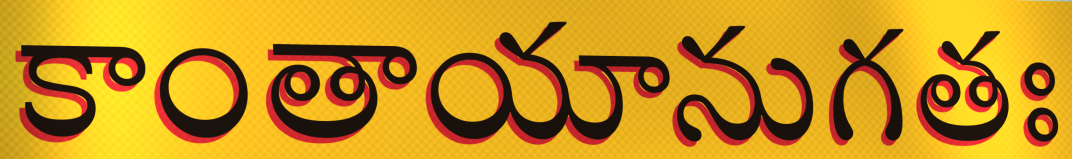
కాంతాయానుగతః